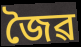
জৈৱ